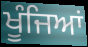
ਖੂੰਜਿਆਂ